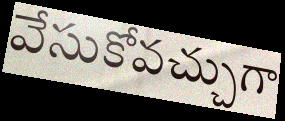
వేసుకోవచ్చుగా